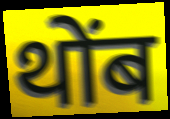
थोंब